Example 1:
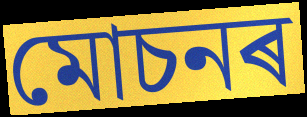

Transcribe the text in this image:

মোচনৰ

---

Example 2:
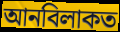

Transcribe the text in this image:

আনবিলাকত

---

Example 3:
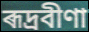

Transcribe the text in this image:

ৰূদ্ৰবীণা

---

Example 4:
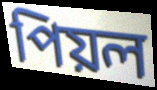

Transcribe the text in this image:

পিয়ল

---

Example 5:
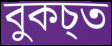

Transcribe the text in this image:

বুকচ্ত